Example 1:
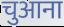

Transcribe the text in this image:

चुआना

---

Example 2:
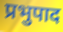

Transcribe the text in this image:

प्रभुपाद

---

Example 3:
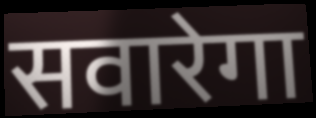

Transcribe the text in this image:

सवारेगा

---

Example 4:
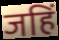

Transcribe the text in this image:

जहिं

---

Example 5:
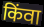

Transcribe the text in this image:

किंवा